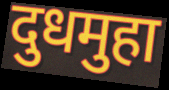
दुधमुहा